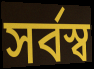
সৰ্বস্ব